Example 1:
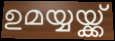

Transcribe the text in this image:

ഉമയ്യയ്ക്ക്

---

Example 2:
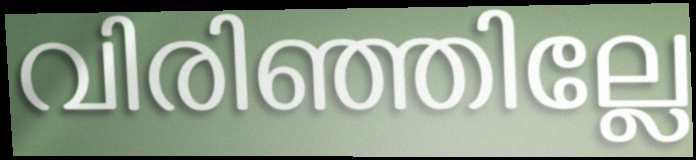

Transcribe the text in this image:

വിരിഞ്ഞില്ലേ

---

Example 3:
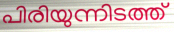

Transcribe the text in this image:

പിരിയുന്നിടത്ത്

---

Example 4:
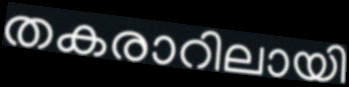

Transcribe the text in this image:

തകരാറിലായി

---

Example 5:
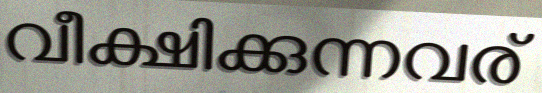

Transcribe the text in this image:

വീക്ഷിക്കുന്നവര്